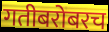
गतीबरोबरच